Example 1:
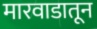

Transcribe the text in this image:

मारवाडातून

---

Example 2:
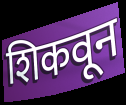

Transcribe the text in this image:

शिकवून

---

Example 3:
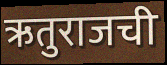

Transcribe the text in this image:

ऋतुराजची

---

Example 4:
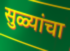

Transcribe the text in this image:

सुळ्यांचा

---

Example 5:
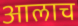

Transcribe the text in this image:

आलाच